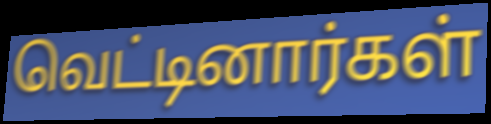
வெட்டினார்கள்